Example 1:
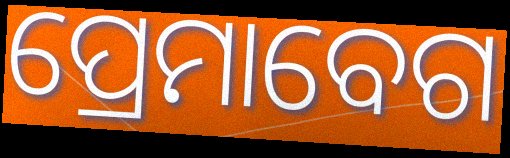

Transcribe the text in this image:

ପ୍ରେମାବେଗ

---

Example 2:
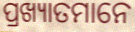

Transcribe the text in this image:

ପ୍ରଖ୍ୟାତମାନେ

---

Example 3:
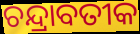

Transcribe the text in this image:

ଚନ୍ଦ୍ରାବତୀକ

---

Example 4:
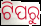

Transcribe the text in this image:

ଟିପରୁ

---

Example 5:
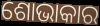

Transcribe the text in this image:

ଶୋଭାକାର